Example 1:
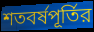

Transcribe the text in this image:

শতবর্ষপূর্তির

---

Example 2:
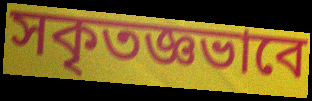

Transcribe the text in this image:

সকৃতজ্ঞভাবে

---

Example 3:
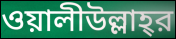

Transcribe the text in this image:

ওয়ালীউল্লাহ্‌র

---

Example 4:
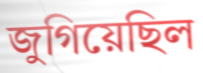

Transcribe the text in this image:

জুগিয়েছিল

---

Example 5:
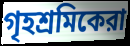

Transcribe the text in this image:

গৃহশ্রমিকেরা